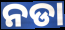
ନଡା